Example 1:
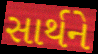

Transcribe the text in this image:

સાર્થને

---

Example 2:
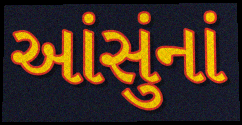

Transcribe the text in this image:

આંસુંનાં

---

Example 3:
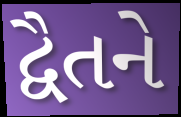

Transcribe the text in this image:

દ્વૈતને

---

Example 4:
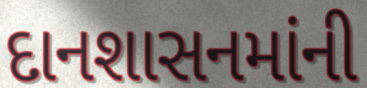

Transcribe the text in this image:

દાનશાસનમાંની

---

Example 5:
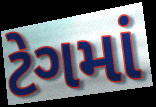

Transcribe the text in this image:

ટેગમાં